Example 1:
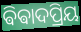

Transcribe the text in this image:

ଵିଵାଦପ୍ରିୟ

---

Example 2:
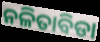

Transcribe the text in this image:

ନଳିତାବିଡା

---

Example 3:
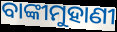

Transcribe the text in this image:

ବାଙ୍କୀମୁହାଣୀ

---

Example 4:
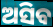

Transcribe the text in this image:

ଅସିବ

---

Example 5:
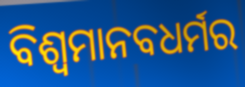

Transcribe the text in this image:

ବିଶ୍ବମାନବଧର୍ମର